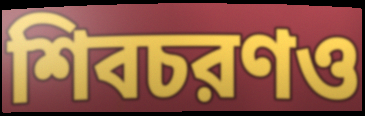
শিবচরণও